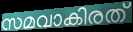
സമവാകിരത്